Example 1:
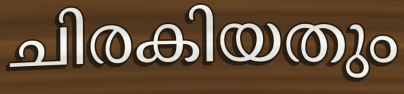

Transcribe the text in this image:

ചിരകിയതും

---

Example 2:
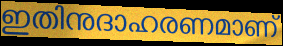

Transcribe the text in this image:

ഇതിനുദാഹരണമാണ്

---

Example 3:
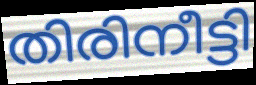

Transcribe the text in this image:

തിരിനീട്ടി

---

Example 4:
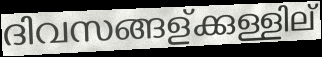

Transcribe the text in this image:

ദിവസങ്ങള്ക്കുള്ളില്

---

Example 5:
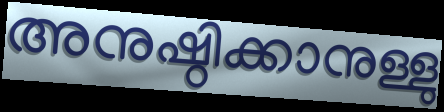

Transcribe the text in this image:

അനുഷ്ഠിക്കാനുള്ളു